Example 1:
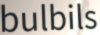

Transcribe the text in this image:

bulbils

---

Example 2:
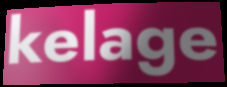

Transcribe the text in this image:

kelage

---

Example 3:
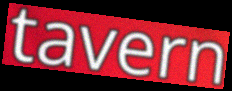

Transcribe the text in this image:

tavern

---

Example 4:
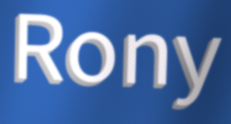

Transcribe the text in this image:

Rony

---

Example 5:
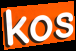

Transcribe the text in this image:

kos